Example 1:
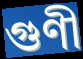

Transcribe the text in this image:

গুণী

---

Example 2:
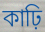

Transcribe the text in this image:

কাঢ়ি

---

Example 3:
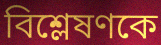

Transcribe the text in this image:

বিশ্লেষণকে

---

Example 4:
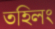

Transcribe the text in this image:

তহিলং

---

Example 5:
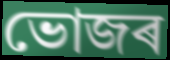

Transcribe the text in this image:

ভোজৰ